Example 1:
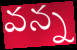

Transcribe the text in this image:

వన్న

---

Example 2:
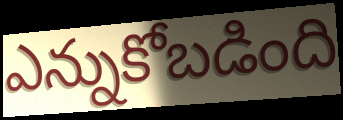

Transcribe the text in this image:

ఎన్నుకోబడింది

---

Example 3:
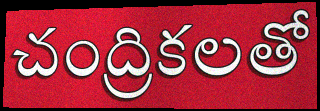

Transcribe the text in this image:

చంద్రికలతో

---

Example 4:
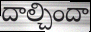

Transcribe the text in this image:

దాల్చిందా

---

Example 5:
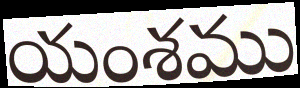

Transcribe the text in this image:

యంశము